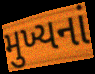
મુખ્યનાં